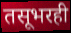
तसूभरही